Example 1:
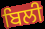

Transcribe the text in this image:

ਬਿਲੀ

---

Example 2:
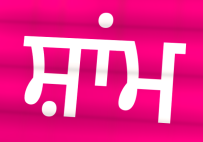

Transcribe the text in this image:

ਸ਼ਾਂਮ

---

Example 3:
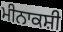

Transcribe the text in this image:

ਮੀਨਾਕਸ਼ੀ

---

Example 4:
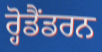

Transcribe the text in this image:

ਰ੍ਹੋਡੈਂਡਰਨ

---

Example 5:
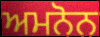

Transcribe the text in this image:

ਅਮਨੋਨ